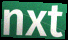
nxt